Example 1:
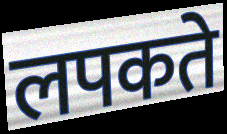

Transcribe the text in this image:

लपकते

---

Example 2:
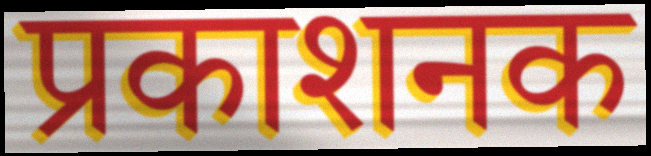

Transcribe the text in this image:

प्रकाशनक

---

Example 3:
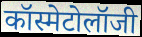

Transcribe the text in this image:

कॉस्मेटोलॉजी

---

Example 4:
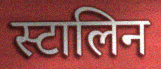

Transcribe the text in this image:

स्टालिन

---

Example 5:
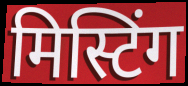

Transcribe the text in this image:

मिस्टिंग